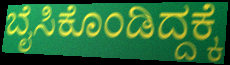
ಬೈಸಿಕೊಂಡಿದ್ದಕ್ಕೆ